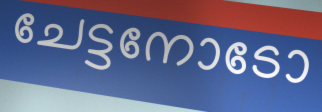
ചേട്ടനോടോ